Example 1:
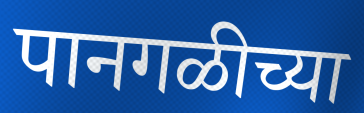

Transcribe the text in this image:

पानगळीच्या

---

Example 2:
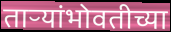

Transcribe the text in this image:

ताऱ्यांभोवतीच्या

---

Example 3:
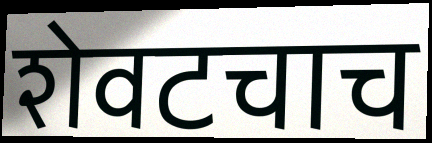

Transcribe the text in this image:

शेवटचाच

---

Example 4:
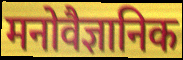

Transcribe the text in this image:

मनोवैज्ञानिक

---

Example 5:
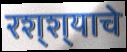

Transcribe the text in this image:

रश्श्याचे